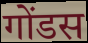
गोंडस